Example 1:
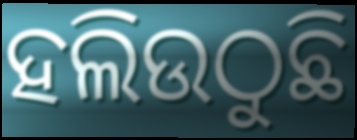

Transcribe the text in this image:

ହଲିଉଠୁଛି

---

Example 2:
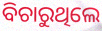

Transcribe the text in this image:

ବିଚାରୁଥିଲେ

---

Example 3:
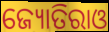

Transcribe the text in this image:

ଜ୍ୟୋତିରାଓ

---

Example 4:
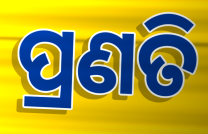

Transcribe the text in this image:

ପ୍ରଣତି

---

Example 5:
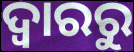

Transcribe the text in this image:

ଦ୍ଵାରରୁ